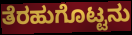
ತೆರಹುಗೊಟ್ಟನು